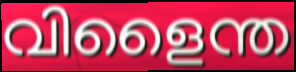
വിളൈന്ത